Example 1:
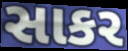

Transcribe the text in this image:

સાકર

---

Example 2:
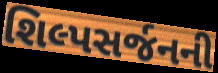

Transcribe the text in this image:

શિલ્પસર્જનની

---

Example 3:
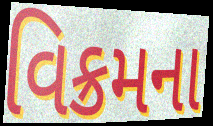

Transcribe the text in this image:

વિક્રમના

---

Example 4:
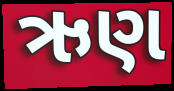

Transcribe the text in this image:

ઋણ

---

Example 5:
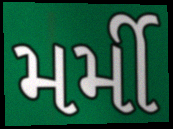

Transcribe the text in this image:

મર્મી